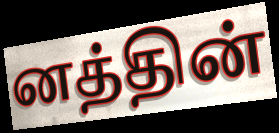
னத்தின்